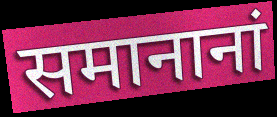
समानानां